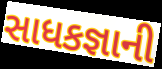
સાધકજ્ઞાની